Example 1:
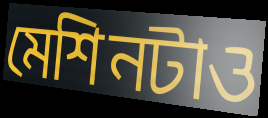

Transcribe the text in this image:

মেশিনটাও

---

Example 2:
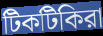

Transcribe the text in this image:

টিকটিকিরা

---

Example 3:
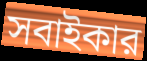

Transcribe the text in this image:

সবাইকার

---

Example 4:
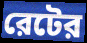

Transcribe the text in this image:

রেটের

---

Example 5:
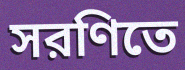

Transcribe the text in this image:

সরণিতে